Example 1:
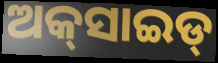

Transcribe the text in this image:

ଅକ୍‌ସାଇଡ୍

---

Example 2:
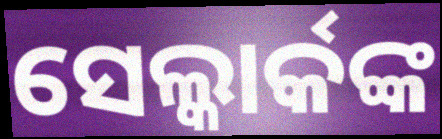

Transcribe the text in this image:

ସେଲ୍କାର୍କଙ୍କ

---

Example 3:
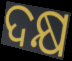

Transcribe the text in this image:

ଦକ୍ଷ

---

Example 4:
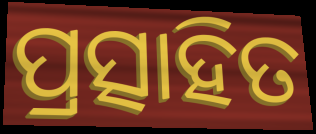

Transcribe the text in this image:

ପ୍ରତ୍ସାହିତ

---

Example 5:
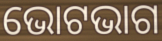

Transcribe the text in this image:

ଭୋଟଭାଗ